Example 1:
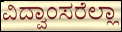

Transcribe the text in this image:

ವಿದ್ವಾಂಸರೆಲ್ಲಾ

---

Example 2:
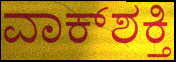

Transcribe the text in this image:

ವಾಕ್‌ಶಕ್ತಿ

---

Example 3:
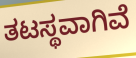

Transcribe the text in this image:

ತಟಸ್ಥವಾಗಿವೆ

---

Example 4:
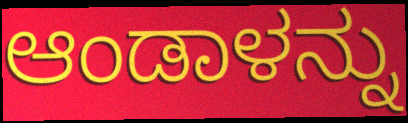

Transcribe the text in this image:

ಆಂಡಾಳನ್ನು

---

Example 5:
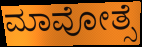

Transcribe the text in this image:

ಮಾವೋತ್ಸೆ